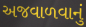
અજવાળવાનું